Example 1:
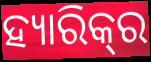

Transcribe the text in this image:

ହ୍ୟାରିକ୍‌ର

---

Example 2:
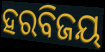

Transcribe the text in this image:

ହରବିଜୟ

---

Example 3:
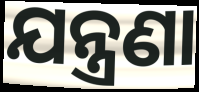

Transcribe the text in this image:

ଯନ୍ତ୍ରଣା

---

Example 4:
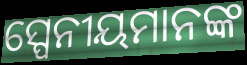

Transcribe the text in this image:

ସ୍ପେନୀୟମାନଙ୍କ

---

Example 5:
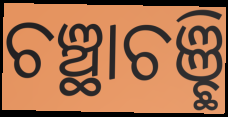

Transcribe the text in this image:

ଚଞ୍ଛାଚଞ୍ଛି